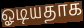
ஓடியதாக